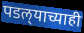
पडल्याच्याही